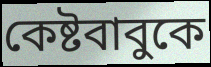
কেষ্টবাবুকে